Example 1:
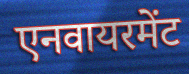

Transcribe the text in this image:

एनवायरमेंट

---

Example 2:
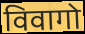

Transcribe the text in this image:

विवागो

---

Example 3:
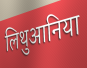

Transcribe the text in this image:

लिथुआनिया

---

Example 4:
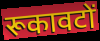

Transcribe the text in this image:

रूकावटों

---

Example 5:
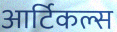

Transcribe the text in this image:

आर्टिकल्स